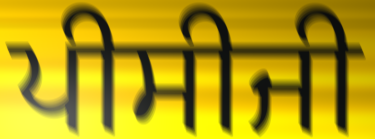
ਪੀਸੀਜੀ